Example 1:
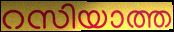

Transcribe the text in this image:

റസിയാത്ത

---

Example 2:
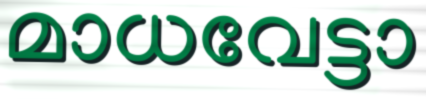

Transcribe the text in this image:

മാധവേട്ടാ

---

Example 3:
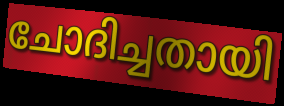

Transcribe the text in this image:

ചോദിച്ചതായി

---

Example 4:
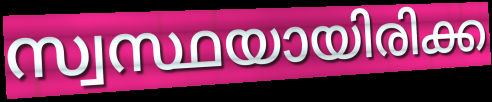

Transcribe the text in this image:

സ്വസ്ഥയായിരിക്ക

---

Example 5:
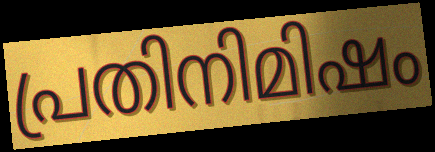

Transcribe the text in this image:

പ്രതിനിമിഷം